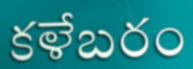
కళేబరం